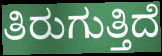
ತಿರುಗುತ್ತಿದೆ